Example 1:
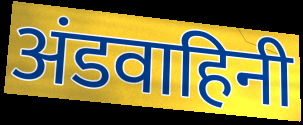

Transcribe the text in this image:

अंडवाहिनी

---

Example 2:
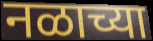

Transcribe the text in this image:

नळाच्या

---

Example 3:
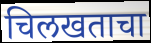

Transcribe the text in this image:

चिलखताचा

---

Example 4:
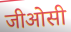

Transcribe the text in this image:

जीओसी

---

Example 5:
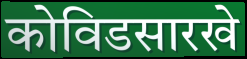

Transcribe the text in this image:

कोविडसारखे